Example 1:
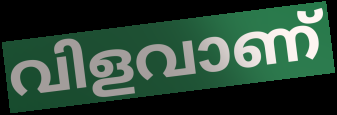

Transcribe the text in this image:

വിളവാണ്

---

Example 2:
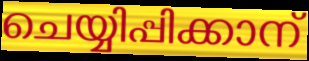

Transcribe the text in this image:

ചെയ്യിപ്പിക്കാന്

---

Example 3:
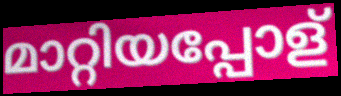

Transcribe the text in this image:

മാറ്റിയപ്പോള്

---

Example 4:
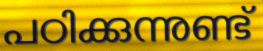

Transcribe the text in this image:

പഠിക്കുന്നുണ്ട്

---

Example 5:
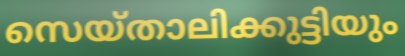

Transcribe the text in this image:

സെയ്താലിക്കുട്ടിയും